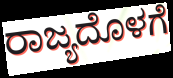
ರಾಜ್ಯದೊಳಗೆ